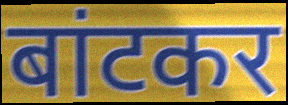
बांटकर